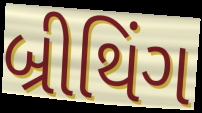
બ્રીથિંગ